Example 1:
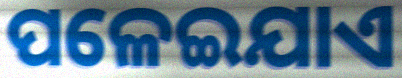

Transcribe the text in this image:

ପଳେଇଯାଏ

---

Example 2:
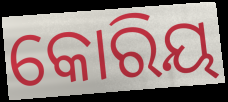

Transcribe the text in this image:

କୋରିୟ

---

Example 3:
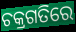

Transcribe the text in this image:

ଚକ୍ରଗତିରେ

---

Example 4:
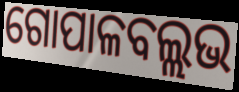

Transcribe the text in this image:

ଗୋପାଳବଲ୍ଲଭ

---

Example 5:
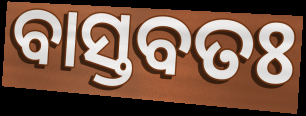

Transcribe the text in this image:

ବାସ୍ତବତଃ